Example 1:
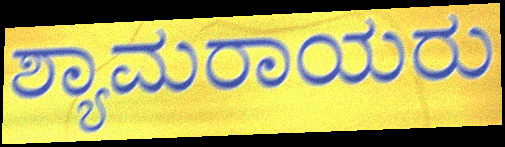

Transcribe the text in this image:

ಶ್ಯಾಮರಾಯರು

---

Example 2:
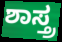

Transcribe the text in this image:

ಶಾಸ್ತ್ರ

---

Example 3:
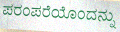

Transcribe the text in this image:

ಪರಂಪರೆಯೊಂದನ್ನು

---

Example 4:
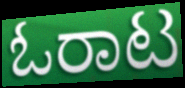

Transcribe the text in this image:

ಓರಾಟ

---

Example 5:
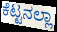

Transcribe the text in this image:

ಕೆಟ್ಟನಲ್ಲಾ